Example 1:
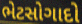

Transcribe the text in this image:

ભેટસોગાદો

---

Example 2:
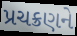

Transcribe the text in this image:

પ્રચક્રણને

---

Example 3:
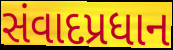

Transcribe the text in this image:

સંવાદપ્રધાન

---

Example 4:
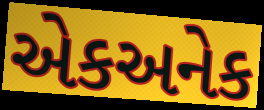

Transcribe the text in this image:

એકઅનેક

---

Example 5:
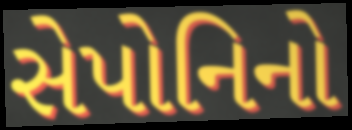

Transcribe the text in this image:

સેપોનિનો